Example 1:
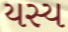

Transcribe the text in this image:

યસ્ય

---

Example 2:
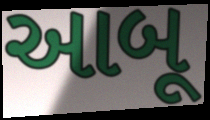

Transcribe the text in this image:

આબૂ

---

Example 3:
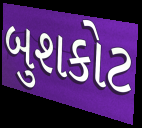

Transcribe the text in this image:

બુશકોટ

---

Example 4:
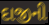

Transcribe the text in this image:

દાજીની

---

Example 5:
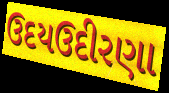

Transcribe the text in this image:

ઉદયઉદીરણા